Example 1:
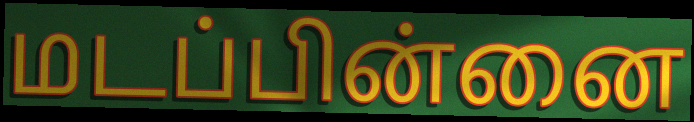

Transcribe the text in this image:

மடப்பின்னை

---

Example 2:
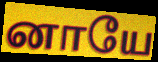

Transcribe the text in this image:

னாயே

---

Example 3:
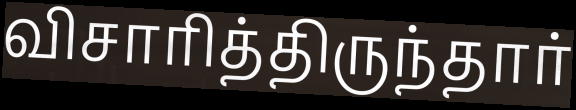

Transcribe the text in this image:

விசாரித்திருந்தார்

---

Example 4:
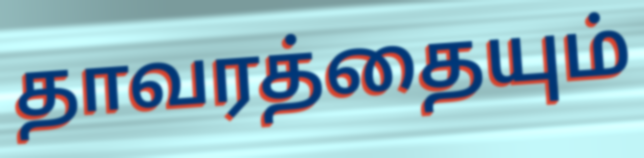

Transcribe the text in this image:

தாவரத்தையும்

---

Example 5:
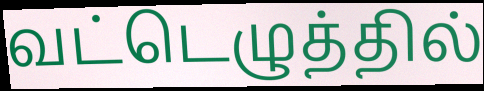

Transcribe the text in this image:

வட்டெழுத்தில்